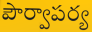
పౌర్వాపర్య